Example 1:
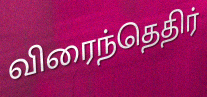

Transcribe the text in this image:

விரைந்தெதிர்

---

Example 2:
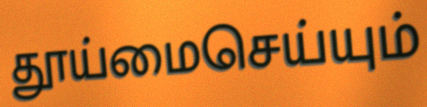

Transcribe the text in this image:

தூய்மைசெய்யும்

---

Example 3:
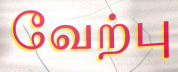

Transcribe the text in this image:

வேற்பு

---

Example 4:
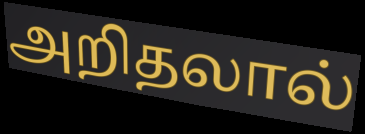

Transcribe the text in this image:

அறிதலால்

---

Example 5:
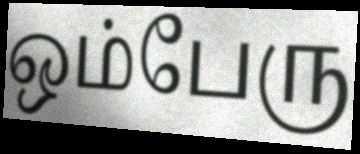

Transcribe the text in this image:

ஒம்பேரு